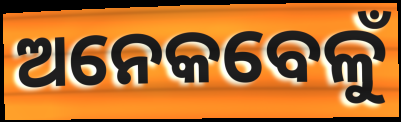
ଅନେକବେଳୁଁ